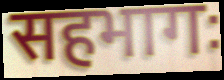
सहभागः